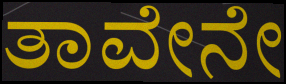
ತಾವೇನೇ